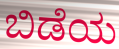
ಬಿಡೆಯ